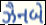
ઝૈનબે